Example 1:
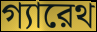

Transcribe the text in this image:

গ্যারেথ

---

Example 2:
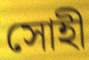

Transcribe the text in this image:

সোহী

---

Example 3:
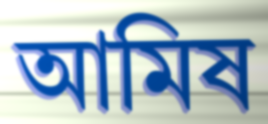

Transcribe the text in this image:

আমিষ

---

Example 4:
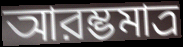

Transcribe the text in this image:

আরম্ভমাত্র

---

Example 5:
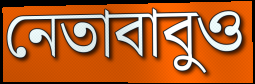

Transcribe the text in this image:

নেতাবাবুও